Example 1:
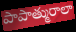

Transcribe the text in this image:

పాపాత్మురాలా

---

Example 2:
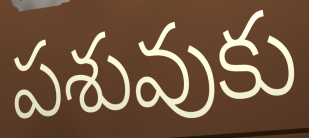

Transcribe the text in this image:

పశువుకు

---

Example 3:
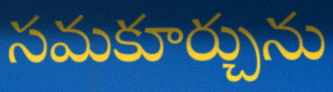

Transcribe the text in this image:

సమకూర్చును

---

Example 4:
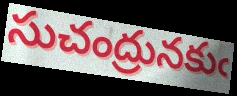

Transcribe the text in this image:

సుచంద్రునకుఁ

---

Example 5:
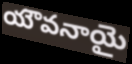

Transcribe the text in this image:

యౌవనాయై